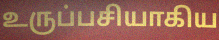
உருப்பசியாகிய